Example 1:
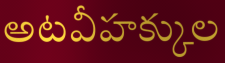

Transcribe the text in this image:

అటవీహక్కుల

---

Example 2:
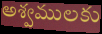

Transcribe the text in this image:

అశ్వములకు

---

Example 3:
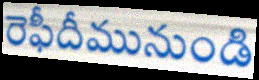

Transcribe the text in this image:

రెఫీదీమునుండి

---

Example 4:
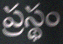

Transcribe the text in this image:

ప్రస్థం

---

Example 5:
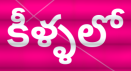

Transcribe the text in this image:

కీళ్ళలో